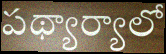
పథ్యార్యాలో